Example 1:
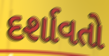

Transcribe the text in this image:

દર્શાવતો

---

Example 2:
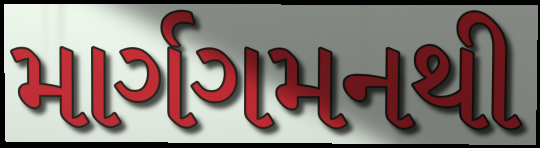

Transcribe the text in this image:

માર્ગગમનથી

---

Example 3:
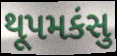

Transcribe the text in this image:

થૂપમકંસુ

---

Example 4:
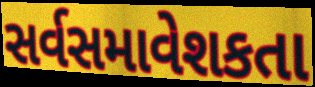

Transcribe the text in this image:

સર્વસમાવેશકતા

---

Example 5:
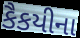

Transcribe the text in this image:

કૈકયીના